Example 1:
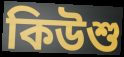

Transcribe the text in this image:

কিউশু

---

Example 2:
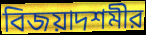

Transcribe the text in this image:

বিজয়াদশমীর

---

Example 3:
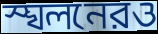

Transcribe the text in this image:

স্খলনেরও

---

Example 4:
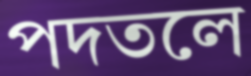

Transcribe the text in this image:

পদতলে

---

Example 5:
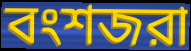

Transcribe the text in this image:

বংশজরা